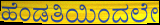
ಹೆಂಡತಿಯಿಂದಲೇ